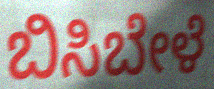
ಬಿಸಿಬೇಳೆ